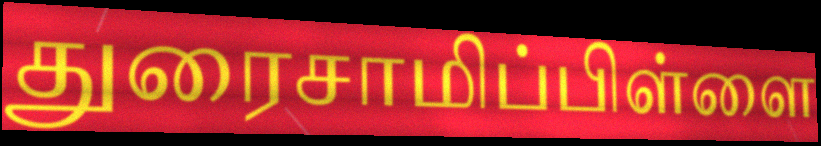
துரைசாமிப்பிள்ளை